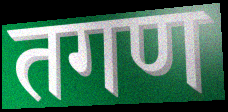
तगण